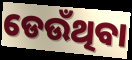
ଡେଉଁଥିବା